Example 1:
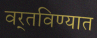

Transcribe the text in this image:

वर्तविण्यात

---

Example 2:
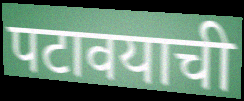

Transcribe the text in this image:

पटावयाची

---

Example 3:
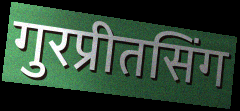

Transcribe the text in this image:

गुरप्रीतसिंग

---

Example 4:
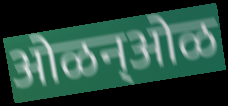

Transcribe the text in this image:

ओळन्ओळ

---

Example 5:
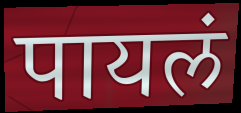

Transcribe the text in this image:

पायलं